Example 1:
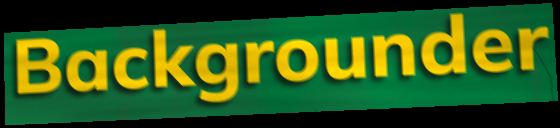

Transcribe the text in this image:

Backgrounder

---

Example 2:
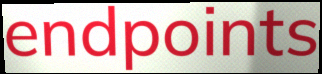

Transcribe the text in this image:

endpoints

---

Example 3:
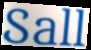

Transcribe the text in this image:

Sall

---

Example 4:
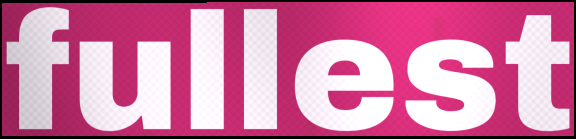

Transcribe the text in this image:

fullest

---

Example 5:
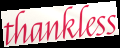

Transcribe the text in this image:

thankless